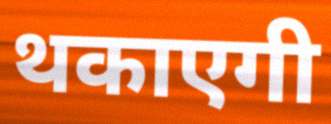
थकाएगी